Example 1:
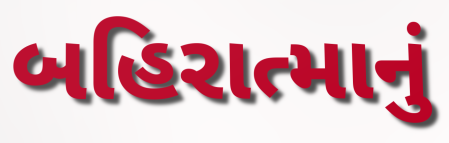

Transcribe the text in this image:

બહિરાત્માનું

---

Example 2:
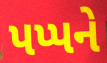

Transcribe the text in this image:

પપ્પને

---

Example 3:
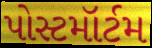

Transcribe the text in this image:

પોસ્ટમૉર્ટમ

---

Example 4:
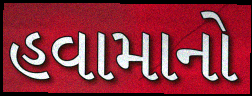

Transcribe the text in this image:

હવામાનો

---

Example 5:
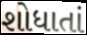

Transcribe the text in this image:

શોધાતાં